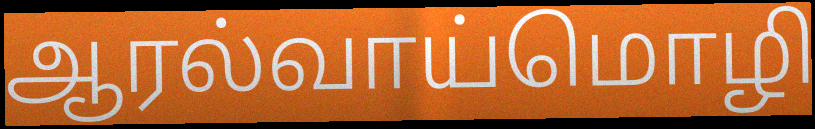
ஆரல்வாய்மொழி